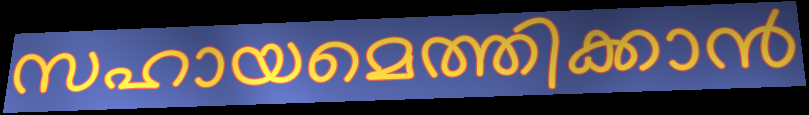
സഹായമെത്തിക്കാൻ